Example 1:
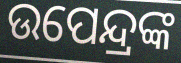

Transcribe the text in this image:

ଉପେନ୍ଦ୍ରଙ୍କ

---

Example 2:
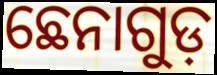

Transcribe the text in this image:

ଛେନାଗୁଡ଼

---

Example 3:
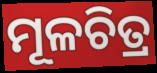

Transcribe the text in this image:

ମୂଳଚିତ୍ର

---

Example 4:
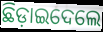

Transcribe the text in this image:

ଛିଡ଼ାଇଦେଲେ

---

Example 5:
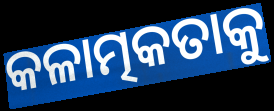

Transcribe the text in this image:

କଳାତ୍ମକତାକୁ